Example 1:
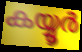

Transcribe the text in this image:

കയ്യൂർ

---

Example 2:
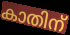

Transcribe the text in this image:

കാതിന്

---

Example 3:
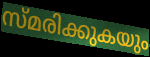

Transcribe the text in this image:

സ്മരിക്കുകയും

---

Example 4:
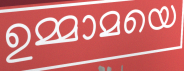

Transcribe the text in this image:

ഉമ്മാമയെ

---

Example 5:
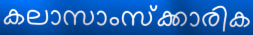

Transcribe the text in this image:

കലാസാംസ്ക്കാരിക